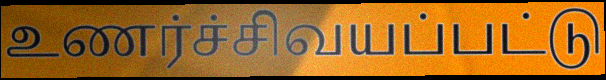
உணர்ச்சிவயப்பட்டு